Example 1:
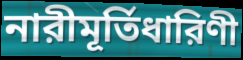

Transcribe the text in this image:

নারীমূর্তিধারিণী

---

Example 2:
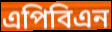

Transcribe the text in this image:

এপিবিএন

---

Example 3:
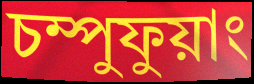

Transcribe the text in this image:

চম্পুফুয়াং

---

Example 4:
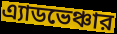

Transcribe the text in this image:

এ্যাডভেঞ্চার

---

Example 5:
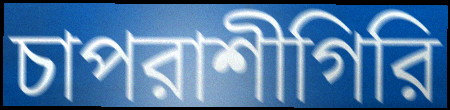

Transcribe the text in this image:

চাপরাশীগিরি